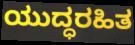
ಯುದ್ಧರಹಿತ